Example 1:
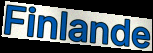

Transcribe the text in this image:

Finlande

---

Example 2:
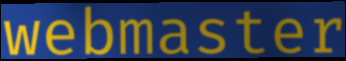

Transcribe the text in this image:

webmaster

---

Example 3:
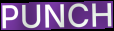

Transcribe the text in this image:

PUNCH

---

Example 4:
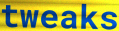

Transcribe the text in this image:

tweaks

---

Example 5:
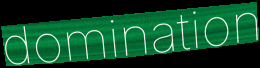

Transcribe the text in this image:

domination